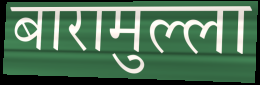
बारामुल्ला